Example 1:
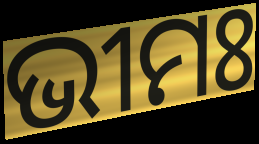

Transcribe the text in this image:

ଭୀମଃ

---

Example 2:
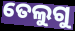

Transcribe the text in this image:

ତେଲୁଗୁ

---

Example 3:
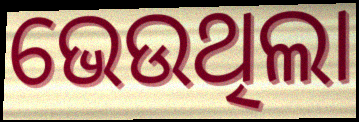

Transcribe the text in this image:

ଭେଉଥିଲା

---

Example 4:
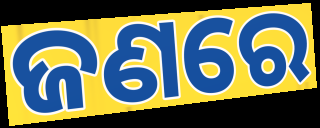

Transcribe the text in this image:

ଜଣରେ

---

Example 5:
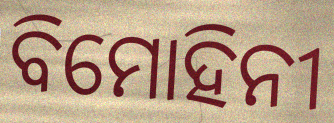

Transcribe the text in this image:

ବିମୋହିନୀ